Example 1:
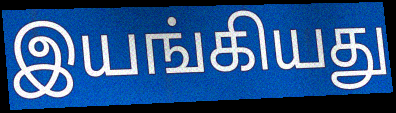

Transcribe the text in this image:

இயங்கியது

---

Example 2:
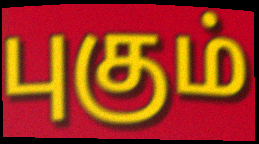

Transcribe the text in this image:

புகும்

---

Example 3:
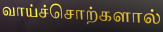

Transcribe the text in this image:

வாய்ச்சொற்களால்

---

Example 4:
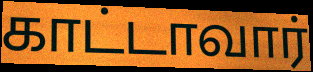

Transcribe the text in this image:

காட்டாவார்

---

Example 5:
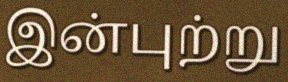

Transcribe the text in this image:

இன்புற்று